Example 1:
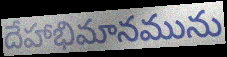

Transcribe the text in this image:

దేహాభిమానమును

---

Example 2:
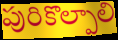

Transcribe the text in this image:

పురికొల్పాలి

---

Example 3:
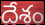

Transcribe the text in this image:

దేశం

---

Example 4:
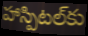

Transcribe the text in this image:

హాస్పిటల్‌కు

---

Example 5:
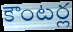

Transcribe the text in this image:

కౌంటర్ల